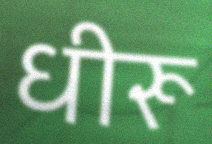
धीरू